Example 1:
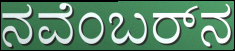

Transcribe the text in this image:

ನವೆಂಬರ್‌ನ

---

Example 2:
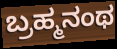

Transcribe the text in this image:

ಬ್ರಹ್ಮನಂಥ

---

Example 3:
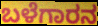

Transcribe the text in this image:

ಬಳೆಗಾರನ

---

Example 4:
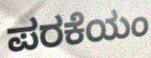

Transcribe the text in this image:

ಪರಕೆಯಂ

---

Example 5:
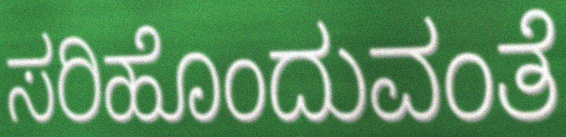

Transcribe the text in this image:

ಸರಿಹೊಂದುವಂತೆ